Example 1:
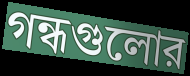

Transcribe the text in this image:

গন্ধগুলোর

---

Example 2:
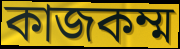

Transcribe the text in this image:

কাজকম্ম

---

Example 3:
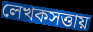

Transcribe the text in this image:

লেখকসত্তায়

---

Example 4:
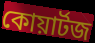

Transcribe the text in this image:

কোয়ার্টজ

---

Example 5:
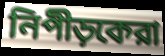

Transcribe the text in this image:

নিপীড়কেরা